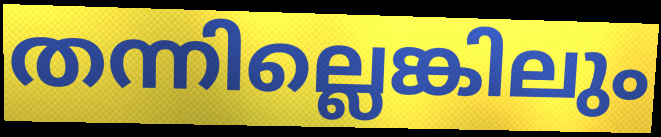
തന്നില്ലെങ്കിലും